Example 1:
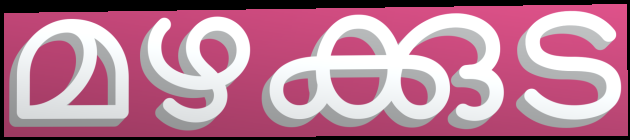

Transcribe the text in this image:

മഴക്കുട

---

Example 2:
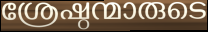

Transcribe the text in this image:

ശ്രേഷ്ഠന്മാരുടെ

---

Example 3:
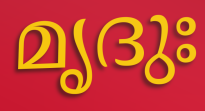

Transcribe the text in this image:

മൃദുഃ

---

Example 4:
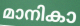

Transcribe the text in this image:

മാനികാ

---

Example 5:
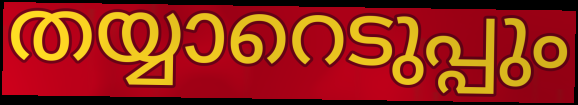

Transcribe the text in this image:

തയ്യാറെടുപ്പും